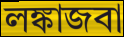
লঙ্কাজবা